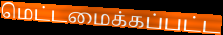
மெட்டமைக்கப்பட்ட